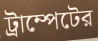
ট্রাম্পেটের